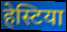
हेस्टिया